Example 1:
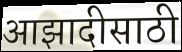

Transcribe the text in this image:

आझादीसाठी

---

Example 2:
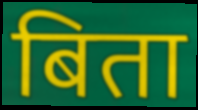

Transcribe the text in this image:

बिता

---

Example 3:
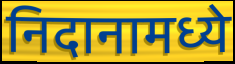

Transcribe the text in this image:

निदानामध्ये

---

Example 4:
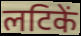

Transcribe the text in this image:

लटिकें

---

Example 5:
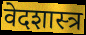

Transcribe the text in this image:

वेदशास्त्र